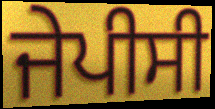
ਜੇਪੀਸੀ